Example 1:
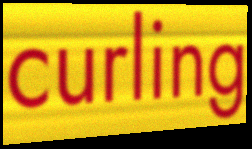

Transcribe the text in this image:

curling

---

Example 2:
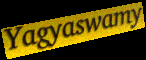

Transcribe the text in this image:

Yagyaswamy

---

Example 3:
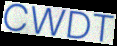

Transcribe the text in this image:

CWDT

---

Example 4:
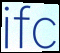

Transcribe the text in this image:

ifc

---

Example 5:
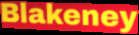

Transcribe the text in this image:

Blakeney